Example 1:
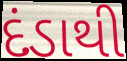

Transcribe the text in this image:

દંડાથી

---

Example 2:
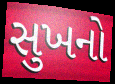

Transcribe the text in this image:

સુખનો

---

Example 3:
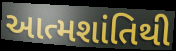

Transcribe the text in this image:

આત્મશાંતિથી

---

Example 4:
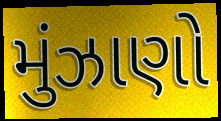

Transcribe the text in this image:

મુંઝાણો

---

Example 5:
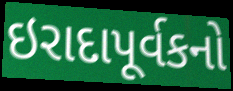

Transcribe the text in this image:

ઇરાદાપૂર્વકનો